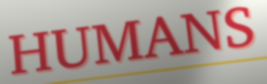
HUMANS